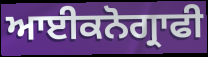
ਆਈਕਨੋਗ੍ਰਾਫੀ